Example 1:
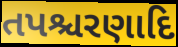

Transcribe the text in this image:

તપશ્ચરણાદિ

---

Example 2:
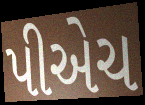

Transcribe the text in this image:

પીએચ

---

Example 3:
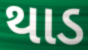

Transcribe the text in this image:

થાડ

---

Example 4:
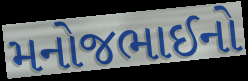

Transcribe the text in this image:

મનોજભાઈનો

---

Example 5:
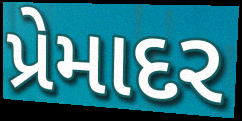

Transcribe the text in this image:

પ્રેમાદર